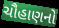
ચૌહાણનો